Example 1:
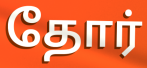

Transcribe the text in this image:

தோர்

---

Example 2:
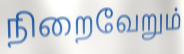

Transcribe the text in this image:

நிறைவேறும்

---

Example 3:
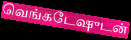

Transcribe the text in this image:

வெங்கடேஷுடன்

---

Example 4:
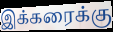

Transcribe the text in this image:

இக்கரைக்கு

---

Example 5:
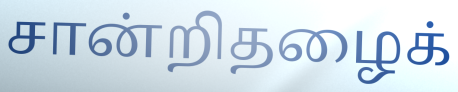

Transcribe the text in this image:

சான்றிதழைக்